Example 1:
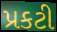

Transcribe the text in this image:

પ્રકટી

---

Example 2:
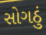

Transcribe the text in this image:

સોગઠું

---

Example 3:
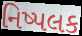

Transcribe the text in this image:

નિષ્પલક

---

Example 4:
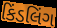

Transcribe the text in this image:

કિંડલિંગ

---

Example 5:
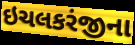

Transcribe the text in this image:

ઇચલકરંજીના